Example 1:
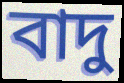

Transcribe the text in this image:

বাদু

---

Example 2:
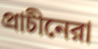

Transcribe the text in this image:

প্রাচীনেরা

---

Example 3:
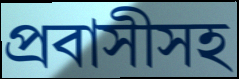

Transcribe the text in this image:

প্রবাসীসহ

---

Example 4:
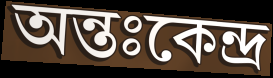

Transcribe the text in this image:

অন্তঃকেন্দ্র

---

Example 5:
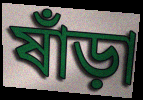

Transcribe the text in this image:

ষাঁড়া